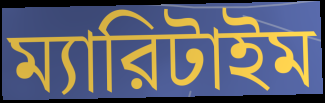
ম্যারিটাইম